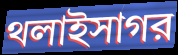
থলাইসাগর